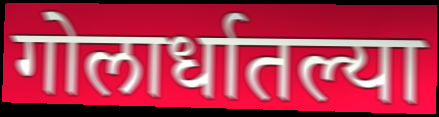
गोलार्धातल्या